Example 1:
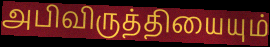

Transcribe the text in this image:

அபிவிருத்தியையும்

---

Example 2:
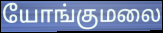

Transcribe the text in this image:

யோங்குமலை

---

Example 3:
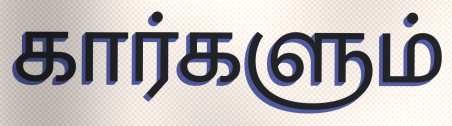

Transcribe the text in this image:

கார்களும்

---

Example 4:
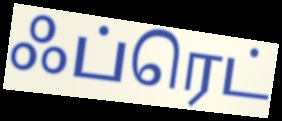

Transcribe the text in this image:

ஃப்ரெட்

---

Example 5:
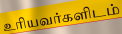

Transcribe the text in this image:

உரியவர்களிடம்